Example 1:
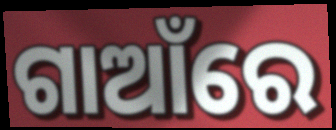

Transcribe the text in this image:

ଗାଆଁରେ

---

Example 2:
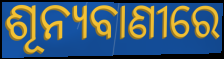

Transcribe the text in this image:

ଶୂନ୍ୟବାଣୀରେ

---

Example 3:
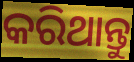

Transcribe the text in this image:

କରିଥାନ୍ତୁ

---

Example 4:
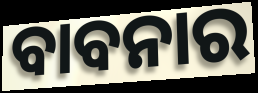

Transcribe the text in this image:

ବାବନାର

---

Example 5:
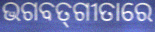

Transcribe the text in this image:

ଭଗବତ୍‌ଗୀତାରେ